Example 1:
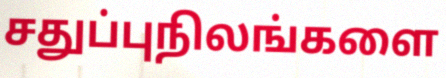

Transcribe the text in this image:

சதுப்புநிலங்களை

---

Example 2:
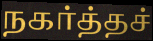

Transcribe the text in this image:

நகர்த்தச்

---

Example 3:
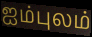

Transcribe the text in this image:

ஐம்புலம்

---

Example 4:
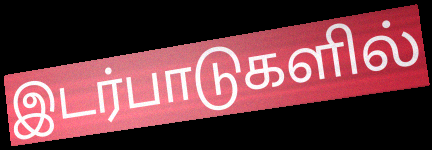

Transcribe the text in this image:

இடர்பாடுகளில்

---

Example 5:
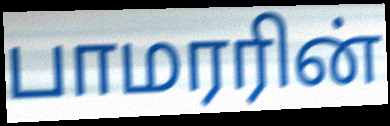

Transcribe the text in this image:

பாமரரின்